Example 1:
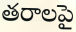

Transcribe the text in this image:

తరాలపై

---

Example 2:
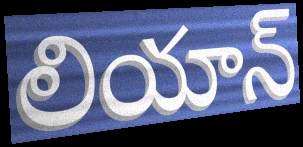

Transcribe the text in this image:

లియాన్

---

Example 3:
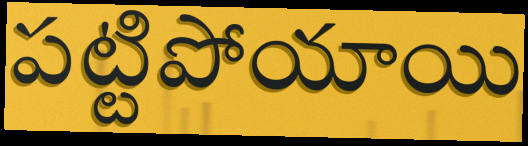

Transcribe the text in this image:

పట్టిపోయాయి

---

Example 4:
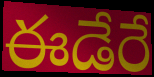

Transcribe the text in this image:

ఈడేరే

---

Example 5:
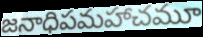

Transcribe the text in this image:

జనాధిపమహాచమూ